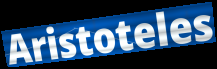
Aristoteles